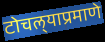
टोचल्याप्रमाणे